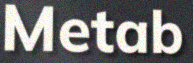
Metab